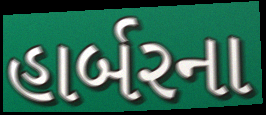
હાર્બરના